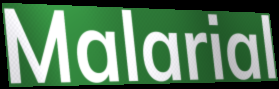
Malarial